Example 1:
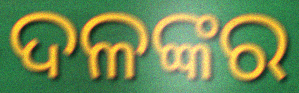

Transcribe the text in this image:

ଦଳଙ୍କର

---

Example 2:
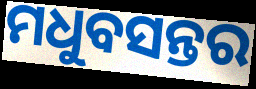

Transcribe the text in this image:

ମଧୁବସନ୍ତର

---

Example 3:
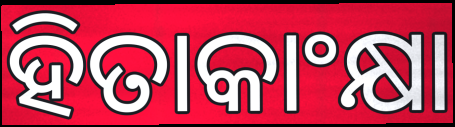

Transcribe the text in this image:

ହିତାକାଂକ୍ଷା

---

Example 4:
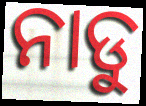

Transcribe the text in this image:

ନାଡୁ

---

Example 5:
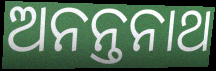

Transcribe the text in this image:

ଅନନ୍ତନାଥ